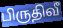
பிருதிவீ